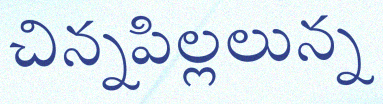
చిన్నపిల్లలున్న